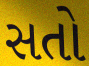
સતો